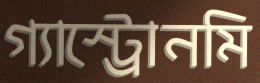
গ্যাস্ট্রোনমি